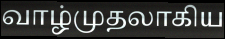
வாழ்முதலாகிய